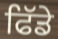
ਫਿੱਡੇ